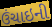
ઉંચાઇની